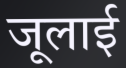
जूलाई